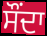
ਸੌਂਦਾ